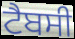
ਟੈਬਸੀ